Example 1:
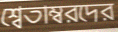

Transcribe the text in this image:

শ্বেতাম্বরদের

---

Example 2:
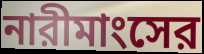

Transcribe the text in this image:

নারীমাংসের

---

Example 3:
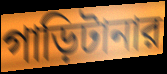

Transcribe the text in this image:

গাড়িটানার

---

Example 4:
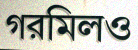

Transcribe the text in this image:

গরমিলও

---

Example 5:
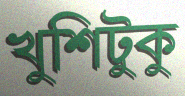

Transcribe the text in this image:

খুশিটুকু